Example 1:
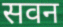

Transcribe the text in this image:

सवन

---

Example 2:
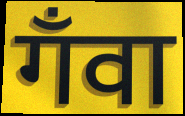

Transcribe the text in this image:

गँवा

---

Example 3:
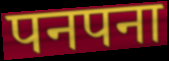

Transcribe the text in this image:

पनपना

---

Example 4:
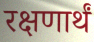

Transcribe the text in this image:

रक्षणार्थं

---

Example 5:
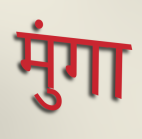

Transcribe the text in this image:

मुंगा